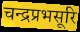
चन्द्रप्रभसूरि